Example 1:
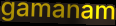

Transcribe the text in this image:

gamanam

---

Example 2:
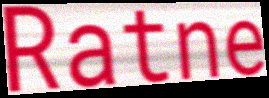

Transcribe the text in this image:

Ratne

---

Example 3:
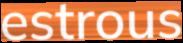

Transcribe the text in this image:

estrous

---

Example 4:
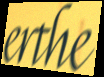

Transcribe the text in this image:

erthe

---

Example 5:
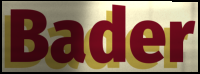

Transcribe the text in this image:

Bader